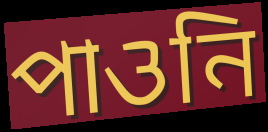
পাওনি